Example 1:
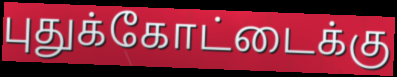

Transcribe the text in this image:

புதுக்கோட்டைக்கு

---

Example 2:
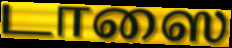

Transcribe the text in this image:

டாஸை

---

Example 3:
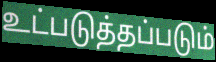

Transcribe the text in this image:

உட்படுத்தப்படும்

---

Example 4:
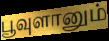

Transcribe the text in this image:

பூவுளானும்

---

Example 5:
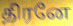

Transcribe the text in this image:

திரனே